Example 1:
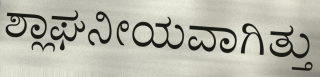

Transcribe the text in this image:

ಶ್ಲಾಘನೀಯವಾಗಿತ್ತು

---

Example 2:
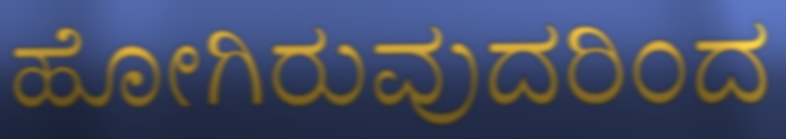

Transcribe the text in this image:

ಹೋಗಿರುವುದರಿಂದ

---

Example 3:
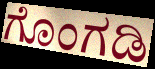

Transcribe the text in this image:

ಗೊಂಗಡಿ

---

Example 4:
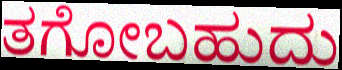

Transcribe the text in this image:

ತಗೋಬಹುದು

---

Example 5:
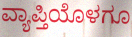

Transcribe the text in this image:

ವ್ಯಾಪ್ತಿಯೊಳಗೂ